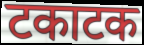
टकाटक